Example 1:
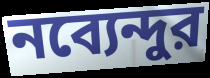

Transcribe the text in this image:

নব্যেন্দুর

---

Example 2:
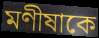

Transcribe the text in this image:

মণীষাকে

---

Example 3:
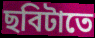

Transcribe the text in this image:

ছবিটাতে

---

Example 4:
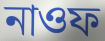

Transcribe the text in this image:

নাওফ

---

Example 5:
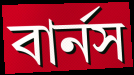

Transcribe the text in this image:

বার্নস